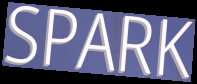
SPARK